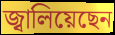
জ্বালিয়েছেন